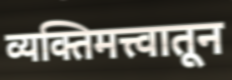
व्यक्तिमत्त्वातून